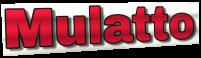
Mulatto